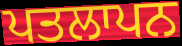
ਪਤਲਾਪਨ